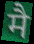
मै